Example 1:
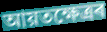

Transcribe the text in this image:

আয়তক্ষেত্ৰৰ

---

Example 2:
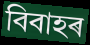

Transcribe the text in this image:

বিবাহৰ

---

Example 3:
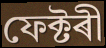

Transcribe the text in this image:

ফেক্টৰী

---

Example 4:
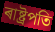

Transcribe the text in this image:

ৰাষ্ট্ৰপতি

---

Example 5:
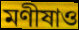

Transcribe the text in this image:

মণীষাও